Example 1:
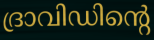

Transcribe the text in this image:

ദ്രാവിഡിന്റെ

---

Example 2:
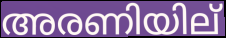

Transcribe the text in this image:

അരണിയില്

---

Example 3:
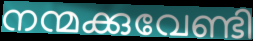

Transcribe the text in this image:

നന്മക്കുവേണ്ടി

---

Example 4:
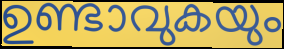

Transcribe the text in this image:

ഉണ്ടാവുകയും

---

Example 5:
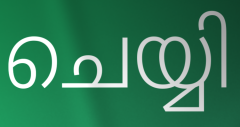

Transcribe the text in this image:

ചെയ്യി